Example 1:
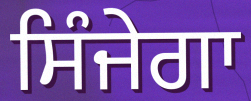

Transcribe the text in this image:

ਸਿੰਜੇਗਾ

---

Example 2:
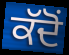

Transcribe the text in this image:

ਕੱਦੋਂ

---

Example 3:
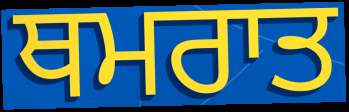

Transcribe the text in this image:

ਥਮਰਾਤ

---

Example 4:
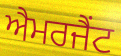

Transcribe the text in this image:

ਐਮਰਜੈਂਟ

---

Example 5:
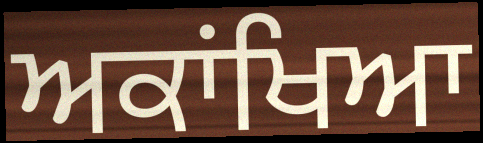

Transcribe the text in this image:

ਅਕਾਂਖਿਆ